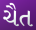
ચૈત